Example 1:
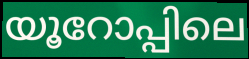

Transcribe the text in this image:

യൂറോപ്പിലെ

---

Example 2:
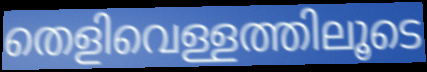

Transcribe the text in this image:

തെളിവെള്ളത്തിലൂടെ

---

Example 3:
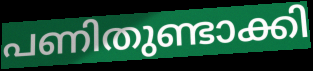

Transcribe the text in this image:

പണിതുണ്ടാക്കി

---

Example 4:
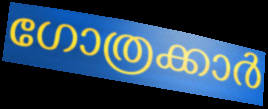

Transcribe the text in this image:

ഗോത്രക്കാർ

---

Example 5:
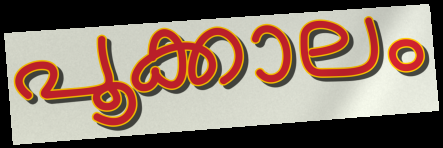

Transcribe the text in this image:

പൂക്കാലം